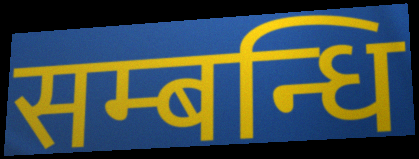
सम्बन्धि